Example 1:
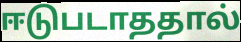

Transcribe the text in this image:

ஈடுபடாததால்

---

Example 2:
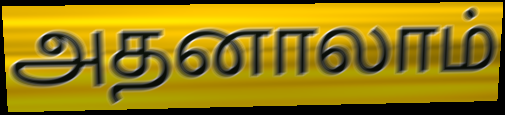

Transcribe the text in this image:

அதனாலாம்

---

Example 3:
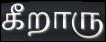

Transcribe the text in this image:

கீறாரு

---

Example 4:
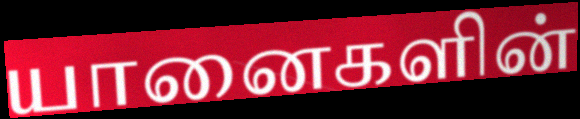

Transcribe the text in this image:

யானைகளின்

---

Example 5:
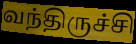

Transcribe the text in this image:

வந்திருச்சி